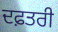
ਦਫ਼ਤਰੀ